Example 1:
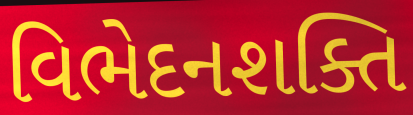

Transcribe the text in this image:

વિભેદનશક્તિ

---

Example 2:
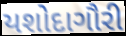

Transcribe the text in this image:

યશોદાગૌરી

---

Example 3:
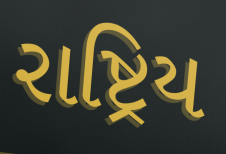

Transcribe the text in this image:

રાષ્ટ્રિય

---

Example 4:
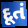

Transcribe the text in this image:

દૂતં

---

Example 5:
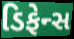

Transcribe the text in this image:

ડિફેન્સ